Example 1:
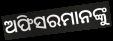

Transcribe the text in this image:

ଅଫିସରମାନଙ୍କୁ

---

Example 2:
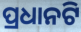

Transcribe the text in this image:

ପ୍ରଧାନଟି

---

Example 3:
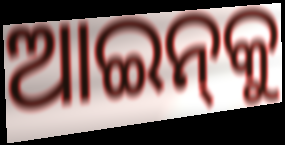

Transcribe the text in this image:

ଆଇନ୍‍କୁ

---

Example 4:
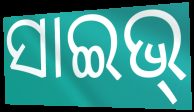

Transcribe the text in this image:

ସାଇଭ୍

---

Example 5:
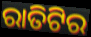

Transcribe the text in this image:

ରାତିଟିର